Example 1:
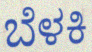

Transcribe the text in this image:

ಬೆಳಕಿ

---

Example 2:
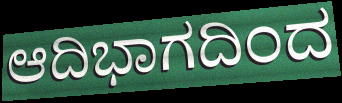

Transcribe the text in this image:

ಆದಿಭಾಗದಿಂದ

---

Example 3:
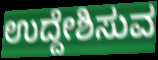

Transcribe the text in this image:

ಉದ್ದೇಶಿಸುವ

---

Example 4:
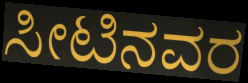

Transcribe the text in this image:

ಸೀಟಿನವರ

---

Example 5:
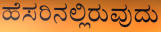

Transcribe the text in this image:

ಹೆಸರಿನಲ್ಲಿರುವುದು